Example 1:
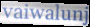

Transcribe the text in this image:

vaiwalunj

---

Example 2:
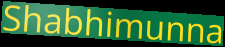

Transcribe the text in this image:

Shabhimunna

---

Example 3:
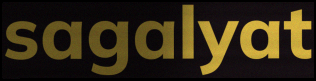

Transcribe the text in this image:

sagalyat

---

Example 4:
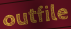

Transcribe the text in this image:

outfile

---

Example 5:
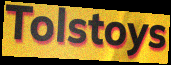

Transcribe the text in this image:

Tolstoys